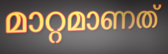
മാറ്റമാണത്